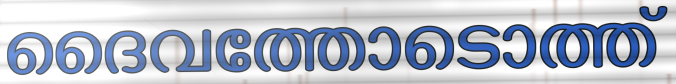
ദൈവത്തോടൊത്ത്